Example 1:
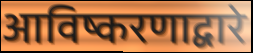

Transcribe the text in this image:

आविष्करणाद्वारे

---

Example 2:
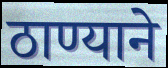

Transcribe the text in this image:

ठाण्याने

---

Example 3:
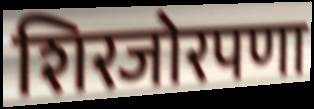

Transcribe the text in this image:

शिरजोरपणा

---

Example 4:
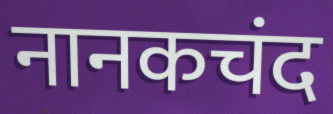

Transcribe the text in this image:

नानकचंद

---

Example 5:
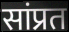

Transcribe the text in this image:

सांप्रत